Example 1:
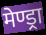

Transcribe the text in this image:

मेण्ड्रा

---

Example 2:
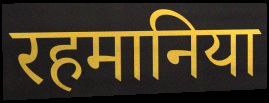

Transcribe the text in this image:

रहमानिया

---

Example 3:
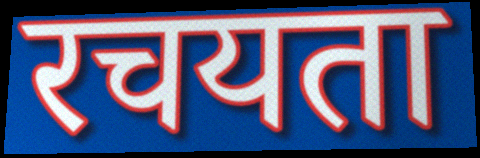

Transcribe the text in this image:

रचयता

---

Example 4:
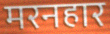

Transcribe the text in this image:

मरनहार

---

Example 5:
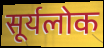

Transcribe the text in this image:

सूर्यलोक